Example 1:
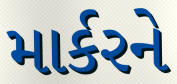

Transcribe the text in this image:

માર્કરને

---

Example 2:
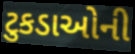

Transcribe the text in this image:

ટુકડાઓની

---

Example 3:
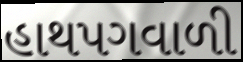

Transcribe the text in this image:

હાથપગવાળી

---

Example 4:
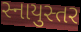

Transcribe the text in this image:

સ્નાયુસ્તર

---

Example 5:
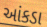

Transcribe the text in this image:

આંકડા